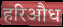
हरिऔध